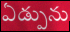
ఏడ్పును